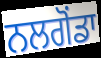
ਨਲਗੋਂਡਾ